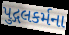
પુદ્ગલકર્મના